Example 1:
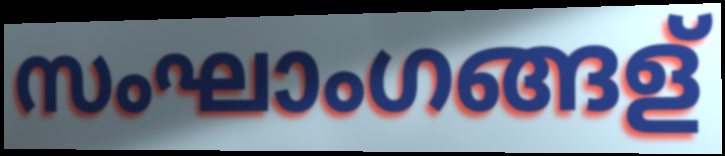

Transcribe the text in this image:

സംഘാംഗങ്ങള്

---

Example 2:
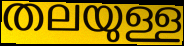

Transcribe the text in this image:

തലയുള്ള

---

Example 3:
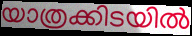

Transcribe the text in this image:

യാത്രക്കിടയിൽ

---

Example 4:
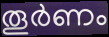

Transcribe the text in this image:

തൂർണം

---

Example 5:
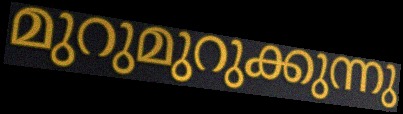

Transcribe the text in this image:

മുറുമുറുക്കുന്നു